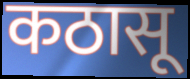
कठासू